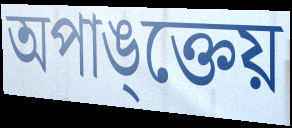
অপাঙ্‌ক্তেয়